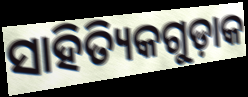
ସାହିତ୍ୟିକଗୁଡ଼ାକ